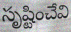
సృష్టించేవి